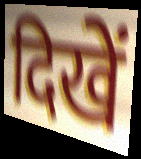
दिखें